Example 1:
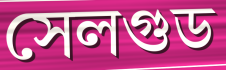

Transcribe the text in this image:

সেলগুড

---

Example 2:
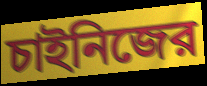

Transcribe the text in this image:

চাইনিজের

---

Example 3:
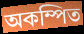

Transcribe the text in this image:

অকম্পিত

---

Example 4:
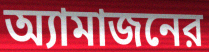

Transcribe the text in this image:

অ্যামাজনের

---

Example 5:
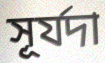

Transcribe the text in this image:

সূর্যদা